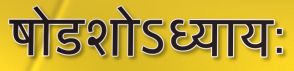
षोडशोऽध्यायः